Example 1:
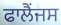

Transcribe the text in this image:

ਫਾਲੈਂਜਸ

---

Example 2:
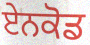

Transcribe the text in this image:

ਏਨਕੋਡ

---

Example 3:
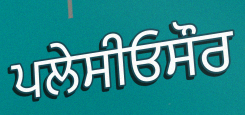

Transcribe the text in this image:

ਪਲੇਸੀਓਸੌਰ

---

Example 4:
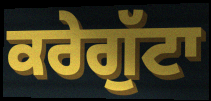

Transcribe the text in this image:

ਕਰੇਗੁੱਟਾ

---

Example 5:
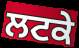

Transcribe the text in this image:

ਲਟਕੇ